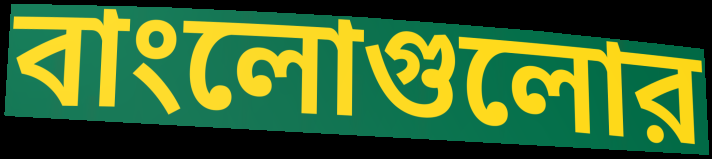
বাংলোগুলোর